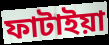
ফাটাইয়া